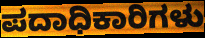
ಪದಾಧಿಕಾರಿಗಳು